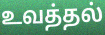
உவத்தல்